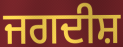
ਜਗਦੀਸ਼